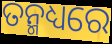
ତନ୍ମଧ୍ୟରେ